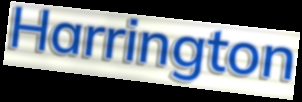
Harrington